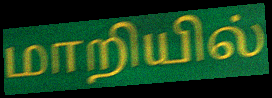
மாறியில்